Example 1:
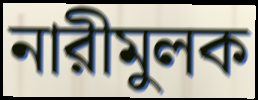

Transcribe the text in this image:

নারীমুলক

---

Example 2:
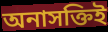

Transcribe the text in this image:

অনাসক্তিই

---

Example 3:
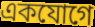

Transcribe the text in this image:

একযোগে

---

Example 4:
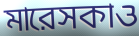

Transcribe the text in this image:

মারেসকাও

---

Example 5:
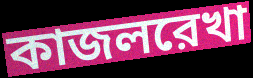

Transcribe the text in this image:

কাজলরেখা